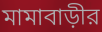
মামাবাড়ীর